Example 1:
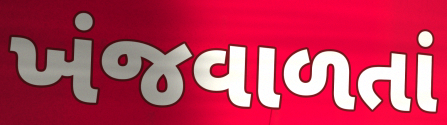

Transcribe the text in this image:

ખંજવાળતાં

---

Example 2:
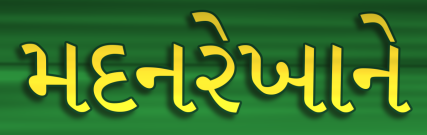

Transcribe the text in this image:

મદનરેખાને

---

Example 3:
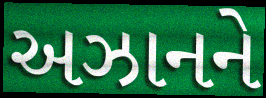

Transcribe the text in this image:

અઝાનને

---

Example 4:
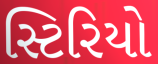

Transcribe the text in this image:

સ્ટિરિયો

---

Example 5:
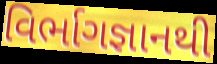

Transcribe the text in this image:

વિર્ભાગજ્ઞાનથી